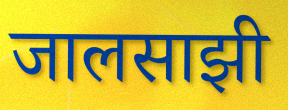
जालसाझी